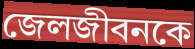
জেলজীবনকে